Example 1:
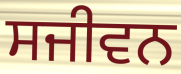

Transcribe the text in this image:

ਸਜੀਵਨ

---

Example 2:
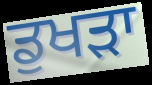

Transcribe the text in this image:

ਡੁਖੜਾ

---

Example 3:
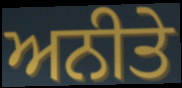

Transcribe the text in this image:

ਅਨੀਤੇ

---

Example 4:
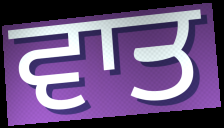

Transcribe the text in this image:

ਵਾਤ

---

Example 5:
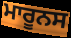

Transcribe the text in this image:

ਮਾਰੂਨਸ